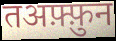
तअफ़्फ़ुन